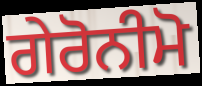
ਗੇਰੋਨੀਮੋ